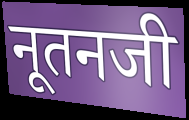
नूतनजी